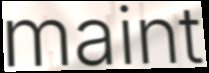
maint